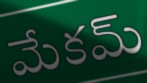
మేకమ్